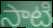
సాటి